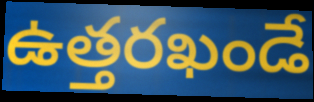
ఉత్తరఖండే